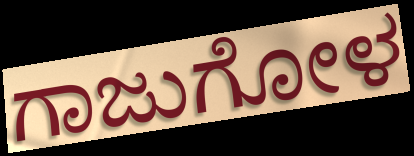
ಗಾಜುಗೋಳ